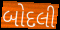
બોદલી